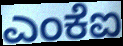
ಎಂಕೆಐ